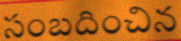
సంబదించిన